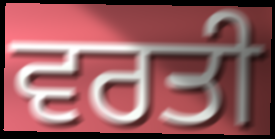
ਵਰਤੀ